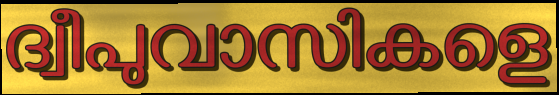
ദ്വീപുവാസികളെ